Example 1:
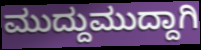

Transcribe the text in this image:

ಮುದ್ದುಮುದ್ದಾಗಿ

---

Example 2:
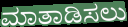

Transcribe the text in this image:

ಮಾತಾಡಿಸಲು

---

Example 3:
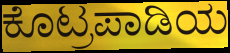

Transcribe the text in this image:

ಕೊಟ್ರಪಾಡಿಯ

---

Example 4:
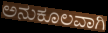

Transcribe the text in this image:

ಅನುಕೂಲವಾಗಿ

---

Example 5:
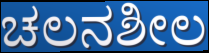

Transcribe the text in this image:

ಚಲನಶೀಲ